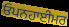
ਓਪਨਹਾਈਮਰ